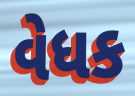
વેધક